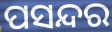
ପସନ୍ଦର